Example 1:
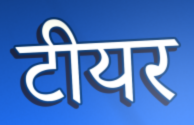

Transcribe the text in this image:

टीयर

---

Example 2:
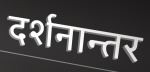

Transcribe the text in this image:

दर्शनान्तर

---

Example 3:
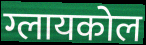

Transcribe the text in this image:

ग्लायकोल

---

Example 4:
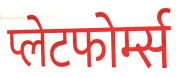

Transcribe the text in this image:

प्लेटफोर्म्स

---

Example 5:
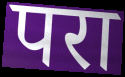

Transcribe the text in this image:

परा